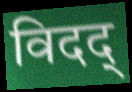
विदद्